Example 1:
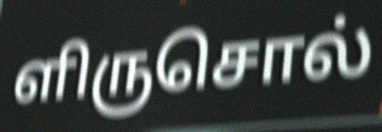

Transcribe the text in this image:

ளிருசொல்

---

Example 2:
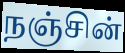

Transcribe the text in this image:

நஞ்சின்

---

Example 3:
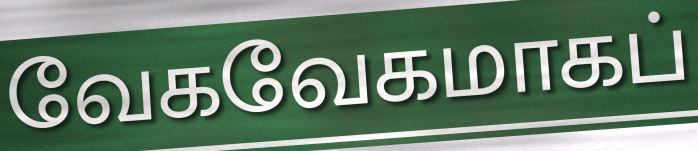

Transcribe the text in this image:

வேகவேகமாகப்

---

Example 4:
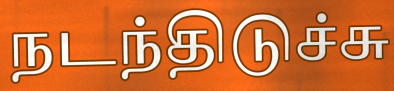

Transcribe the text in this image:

நடந்திடுச்சு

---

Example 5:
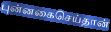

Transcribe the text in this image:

புன்னகைசெய்தான்